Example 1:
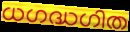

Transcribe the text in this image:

ധഗദ്ധഗിത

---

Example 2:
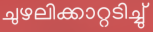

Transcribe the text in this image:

ചുഴലിക്കാറ്റടിച്ചു്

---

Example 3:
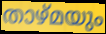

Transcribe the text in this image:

താഴ്മയും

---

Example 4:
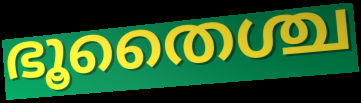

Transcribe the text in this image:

ഭൂതൈശ്ച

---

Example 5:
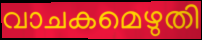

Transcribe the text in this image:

വാചകമെഴുതി